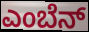
ಎಂಬೆನ್